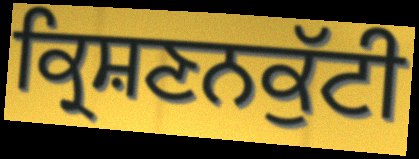
ਕ੍ਰਿਸ਼ਣਨਕੁੱਟੀ